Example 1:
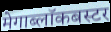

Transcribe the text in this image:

मेगाब्लॉकबस्टर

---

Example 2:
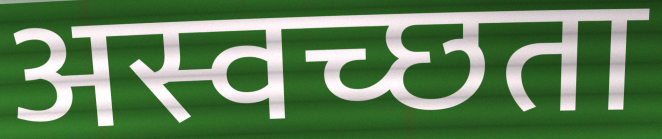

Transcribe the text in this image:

अस्वच्छता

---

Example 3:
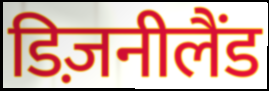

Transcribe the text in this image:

डिज़नीलैंड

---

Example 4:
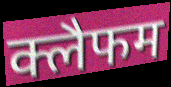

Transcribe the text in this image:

क्लैफम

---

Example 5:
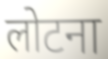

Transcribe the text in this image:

लोटना